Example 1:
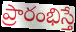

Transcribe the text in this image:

ప్రారంభిస్తే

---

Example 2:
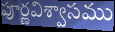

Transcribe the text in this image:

పూర్ణవిశ్వాసము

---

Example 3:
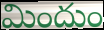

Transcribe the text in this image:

మిందుం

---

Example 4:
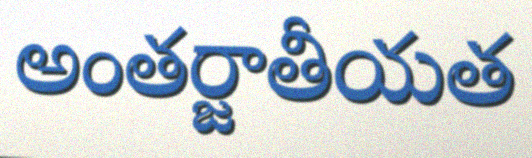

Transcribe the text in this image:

అంతర్జాతీయత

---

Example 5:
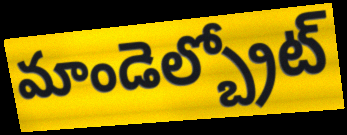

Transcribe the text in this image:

మాండెల్బ్రోట్